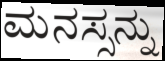
ಮನಸ್ಸನ್ನು